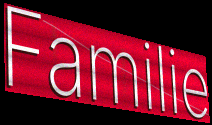
Familie